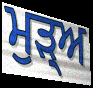
ਮੁਡ਼੍ਅ